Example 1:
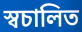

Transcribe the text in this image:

স্বচালিত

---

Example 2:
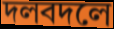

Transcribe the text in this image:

দলবদলে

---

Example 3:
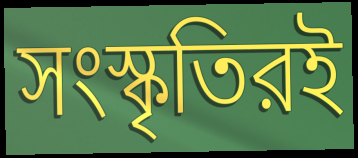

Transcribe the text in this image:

সংস্কৃতিরই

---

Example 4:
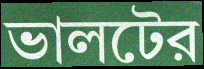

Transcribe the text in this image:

ভালটের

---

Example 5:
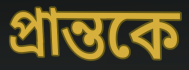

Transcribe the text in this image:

প্রান্তকে